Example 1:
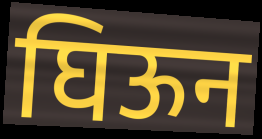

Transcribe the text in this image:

घिऊन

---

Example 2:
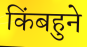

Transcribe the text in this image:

किंबहुने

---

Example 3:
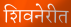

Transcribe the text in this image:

शिवनेरीत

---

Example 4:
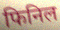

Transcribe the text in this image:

फिनिल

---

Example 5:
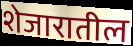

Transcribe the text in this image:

शेजारातील